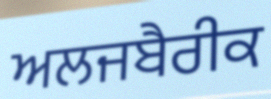
ਅਲਜਬੈਰੀਕ